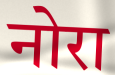
नोरा